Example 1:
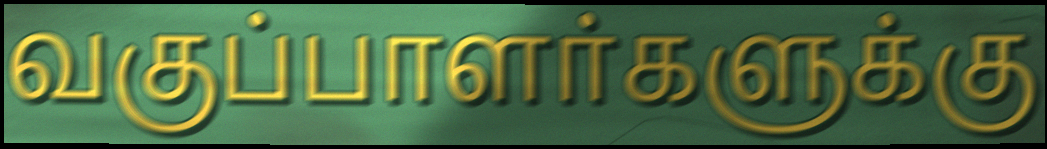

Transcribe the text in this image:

வகுப்பாளர்களுக்கு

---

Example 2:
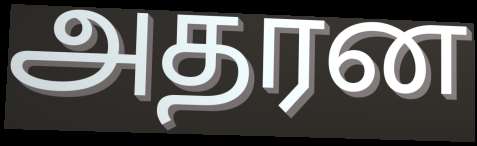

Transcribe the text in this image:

அதரன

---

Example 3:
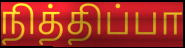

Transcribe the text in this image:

நித்திப்பா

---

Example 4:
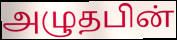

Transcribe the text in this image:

அழுதபின்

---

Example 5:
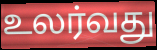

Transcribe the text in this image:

உலர்வது